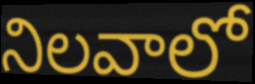
నిలవాలో